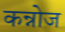
कन्नोज